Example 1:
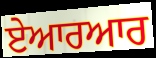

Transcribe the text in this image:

ਏਆਰਆਰ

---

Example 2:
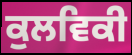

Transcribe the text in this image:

ਕੁਲਵਿਕੀ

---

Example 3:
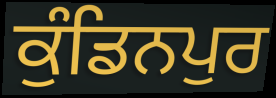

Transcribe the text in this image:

ਕੁੰਡਿਨਪੁਰ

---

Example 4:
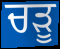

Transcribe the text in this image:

ਚੜੂ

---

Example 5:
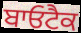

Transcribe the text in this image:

ਬਾਓਟੈਕ